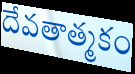
దేవతాత్మకం